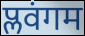
प्लवंगम